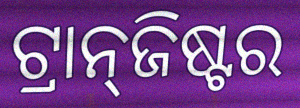
ଟ୍ରାନ୍‍ଜିଷ୍ଟର